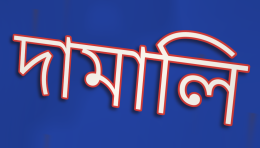
দামালি